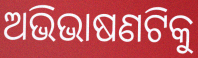
ଅଭିଭାଷଣଟିକୁ